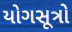
યોગસૂત્રો